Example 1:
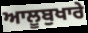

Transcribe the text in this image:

ਆਲੂਬੁਖਾਰੇ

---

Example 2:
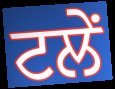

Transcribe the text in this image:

ਟਲੇਂ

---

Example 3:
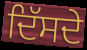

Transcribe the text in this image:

ਦਿੱਸਦੇ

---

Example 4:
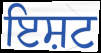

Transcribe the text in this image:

ਇਸ਼ਟ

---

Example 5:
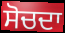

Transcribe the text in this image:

ਸੋਚਦਾ